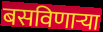
बसविणार्‍या